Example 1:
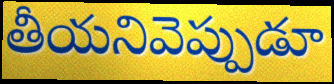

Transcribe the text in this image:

తీయనివెప్పుడూ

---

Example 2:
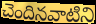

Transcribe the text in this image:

చెందినవాటిని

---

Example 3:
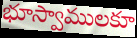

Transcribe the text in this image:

భూస్వాములకూ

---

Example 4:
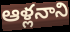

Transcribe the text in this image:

ఆళ్లనాని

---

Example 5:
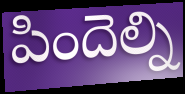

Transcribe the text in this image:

పిందెల్ని